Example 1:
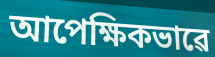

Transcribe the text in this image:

আপেক্ষিকভাৱে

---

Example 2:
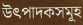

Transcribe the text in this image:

উৎপাদকসমূহ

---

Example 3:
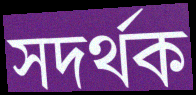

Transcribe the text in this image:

সদৰ্থক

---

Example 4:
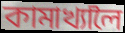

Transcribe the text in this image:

কামাখ্যালৈ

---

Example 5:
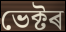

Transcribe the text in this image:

ভেক্টৰ